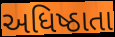
અધિષ્ઠાતા